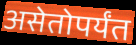
असेतोपर्यंत